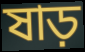
ষাড়